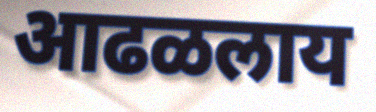
आढळलाय